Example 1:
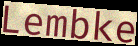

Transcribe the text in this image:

Lembke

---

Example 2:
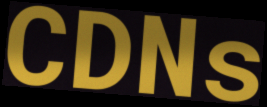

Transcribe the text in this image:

CDNs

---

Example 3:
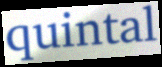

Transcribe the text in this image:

quintal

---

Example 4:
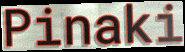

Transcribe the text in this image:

Pinaki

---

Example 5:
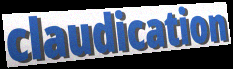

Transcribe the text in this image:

claudication